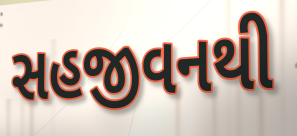
સહજીવનથી